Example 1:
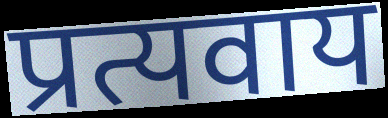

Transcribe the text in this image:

प्रत्यवाय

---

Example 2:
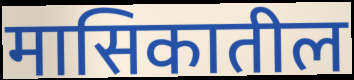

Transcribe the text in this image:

मासिकातील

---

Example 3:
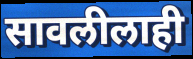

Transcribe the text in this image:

सावलीलाही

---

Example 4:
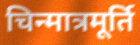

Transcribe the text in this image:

चिन्मात्रमूर्ति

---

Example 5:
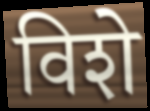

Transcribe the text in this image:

विशे